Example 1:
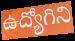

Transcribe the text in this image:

ఉద్యోగిని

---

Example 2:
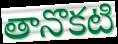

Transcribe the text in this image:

తానొకటి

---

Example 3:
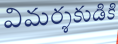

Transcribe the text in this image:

విమర్శకుడికి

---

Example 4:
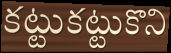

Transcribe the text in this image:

కట్టుకట్టుకొని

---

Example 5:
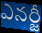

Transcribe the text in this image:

ఎనర్జీ